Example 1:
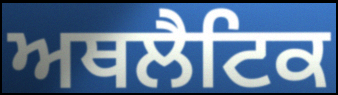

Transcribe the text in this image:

ਅਥਲੈਟਿਕ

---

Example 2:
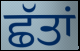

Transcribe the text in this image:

ਛੱਤਾਂ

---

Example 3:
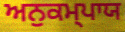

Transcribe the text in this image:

ਅਨੁਕਮ੍ਪਾਯ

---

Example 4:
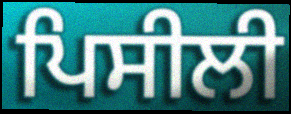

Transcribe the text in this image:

ਪਿਸੀਲੀ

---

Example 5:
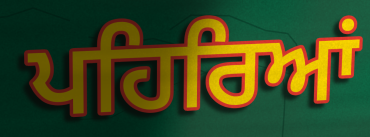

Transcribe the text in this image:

ਪਹਿਰਿਆਂ